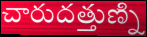
చారుదత్తుణ్ని